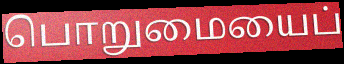
பொறுமையைப்